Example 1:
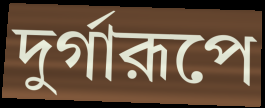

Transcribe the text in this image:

দুর্গারূপে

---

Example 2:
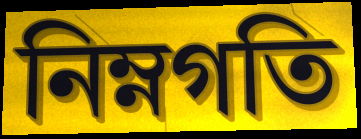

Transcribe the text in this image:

নিম্নগতি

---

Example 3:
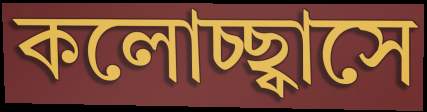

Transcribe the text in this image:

কলোচ্ছ্বাসে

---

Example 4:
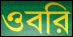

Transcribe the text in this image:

ওবরি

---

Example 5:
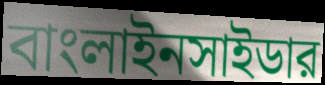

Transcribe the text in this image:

বাংলাইনসাইডার